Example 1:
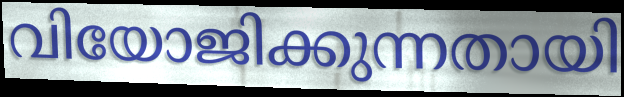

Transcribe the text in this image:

വിയോജിക്കുന്നതായി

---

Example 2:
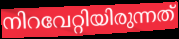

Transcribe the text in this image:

നിറവേറ്റിയിരുന്നത്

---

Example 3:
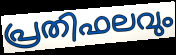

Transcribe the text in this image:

പ്രതിഫലവും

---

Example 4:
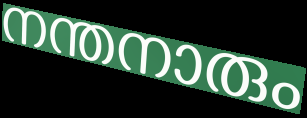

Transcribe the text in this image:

നന്തനാരും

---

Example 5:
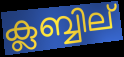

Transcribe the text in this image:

ക്ലബ്ബില്